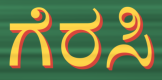
ಗೆರಸಿ